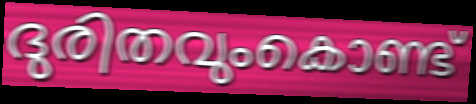
ദുരിതവുംകൊണ്ട്